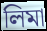
লিমা